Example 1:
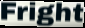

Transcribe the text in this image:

Fright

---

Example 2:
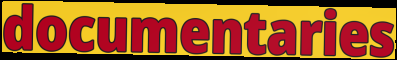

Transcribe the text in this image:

documentaries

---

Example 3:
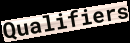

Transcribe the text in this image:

Qualifiers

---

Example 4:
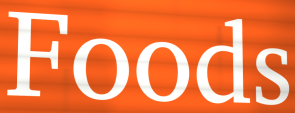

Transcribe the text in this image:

Foods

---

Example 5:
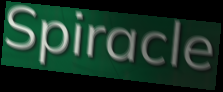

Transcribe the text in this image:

Spiracle